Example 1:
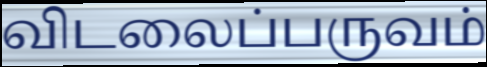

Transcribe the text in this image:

விடலைப்பருவம்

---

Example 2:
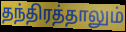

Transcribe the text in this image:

தந்திரத்தாலும்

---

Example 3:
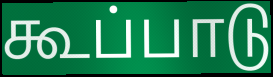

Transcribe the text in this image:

கூப்பாடு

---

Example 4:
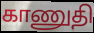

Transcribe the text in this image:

காணுதி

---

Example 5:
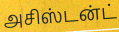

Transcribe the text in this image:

அசிஸ்டன்ட்